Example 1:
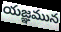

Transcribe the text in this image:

యజ్ఞమున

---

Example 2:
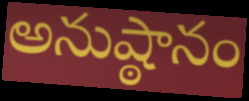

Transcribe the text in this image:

అనుష్ఠానం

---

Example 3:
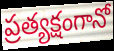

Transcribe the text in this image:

ప్రత్యక్షంగానో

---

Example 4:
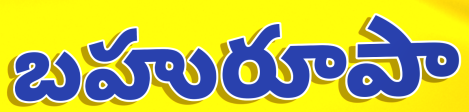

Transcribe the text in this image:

బహురూపా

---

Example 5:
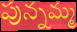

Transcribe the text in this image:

పున్నమ్మ